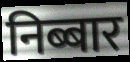
निब्बार